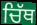
ਚਿੱਥ